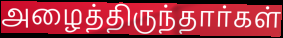
அழைத்திருந்தார்கள்